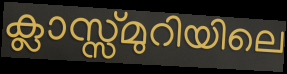
ക്ലാസ്സ്മുറിയിലെ